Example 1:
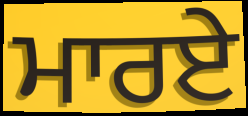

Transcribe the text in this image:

ਮਾਰਏ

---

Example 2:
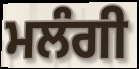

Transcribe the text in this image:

ਮਲੰਗੀ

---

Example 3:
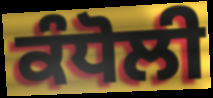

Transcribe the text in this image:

ਕੰਧੋਲੀ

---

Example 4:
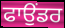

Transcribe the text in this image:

ਫਾਉਂਡਰ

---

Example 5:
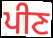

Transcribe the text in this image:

ਪੀਣ